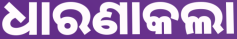
ଧାରଣାକଲା